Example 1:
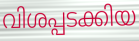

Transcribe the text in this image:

വിശപ്പടക്കിയ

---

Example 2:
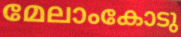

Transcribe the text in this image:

മേലാംകോടു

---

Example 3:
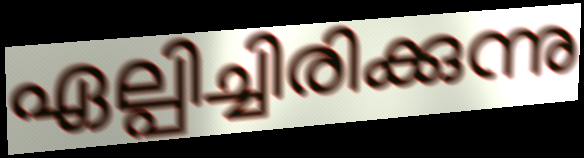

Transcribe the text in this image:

ഏല്പിച്ചിരിക്കുന്നു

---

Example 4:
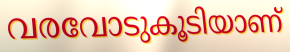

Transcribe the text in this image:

വരവോടുകൂടിയാണ്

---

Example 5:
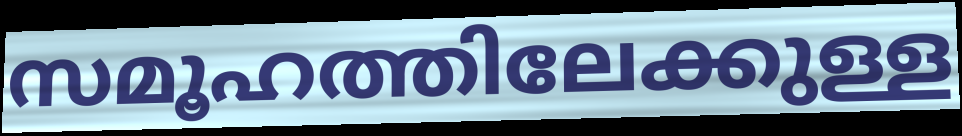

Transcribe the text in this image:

സമൂഹത്തിലേക്കുള്ള